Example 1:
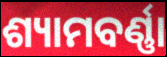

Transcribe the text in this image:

ଶ୍ୟାମବର୍ଣ୍ଣା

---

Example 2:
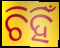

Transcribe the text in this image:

ଚିହିଁ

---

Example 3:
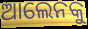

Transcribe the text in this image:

ଆଲେନକୁ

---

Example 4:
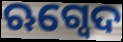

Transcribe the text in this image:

ଋଗ୍ବେଦ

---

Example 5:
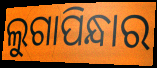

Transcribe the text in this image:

ଲୁଗାପିନ୍ଧାର